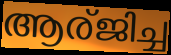
ആര്ജിച്ച